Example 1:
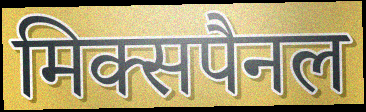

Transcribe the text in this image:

मिक्सपैनल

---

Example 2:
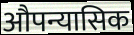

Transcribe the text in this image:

औपन्यासिक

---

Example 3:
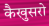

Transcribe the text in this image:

कैखुसरो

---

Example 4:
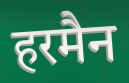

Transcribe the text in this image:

हरमैन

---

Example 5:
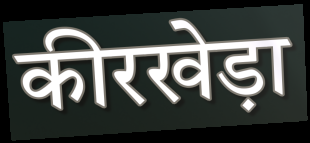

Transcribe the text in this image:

कीरखेड़ा